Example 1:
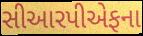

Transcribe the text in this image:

સીઆરપીએફના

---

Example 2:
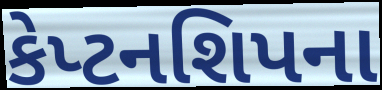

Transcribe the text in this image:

કેપ્ટનશિપના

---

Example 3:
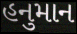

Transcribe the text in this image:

હનુમાન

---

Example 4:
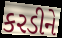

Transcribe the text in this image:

કરડીને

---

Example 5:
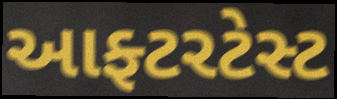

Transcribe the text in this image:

આફ્ટરટેસ્ટ